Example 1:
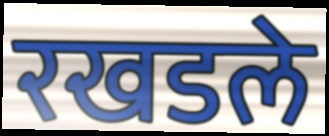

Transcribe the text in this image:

रखडले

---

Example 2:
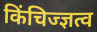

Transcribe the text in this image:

किंचिज्ज्ञत्व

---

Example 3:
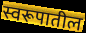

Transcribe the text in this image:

स्वरूपातील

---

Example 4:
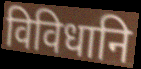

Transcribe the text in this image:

विविधानि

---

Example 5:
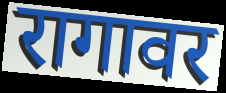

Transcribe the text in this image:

रागावर